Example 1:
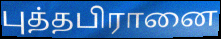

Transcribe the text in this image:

புத்தபிரானை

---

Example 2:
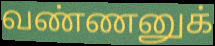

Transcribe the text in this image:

வண்ணனுக்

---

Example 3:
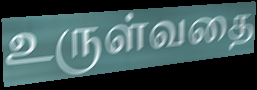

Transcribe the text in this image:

உருள்வதை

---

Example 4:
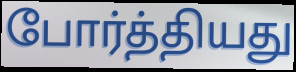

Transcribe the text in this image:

போர்த்தியது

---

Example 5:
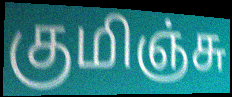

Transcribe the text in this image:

குமிஞ்சு